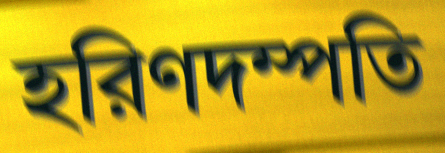
হরিণদম্পতি